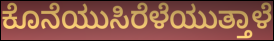
ಕೊನೆಯುಸಿರೆಳೆಯುತ್ತಾಳೆ